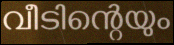
വീടിന്റെയും